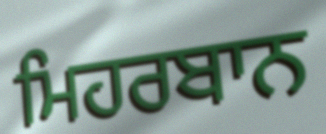
ਮਿਹਰਬਾਨ